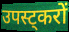
उपस्ट्करों